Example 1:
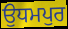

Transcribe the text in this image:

ਉਧਮਪੁਰ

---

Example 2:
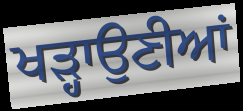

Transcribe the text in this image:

ਖੜ੍ਹਾਉਣੀਆਂ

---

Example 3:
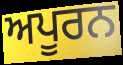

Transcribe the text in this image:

ਅਪੂਰਨ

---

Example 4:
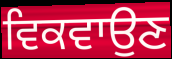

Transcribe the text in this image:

ਵਿਕਵਾਉਣ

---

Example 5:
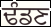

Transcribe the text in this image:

ਢੰਡਣ